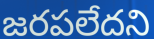
జరపలేదని